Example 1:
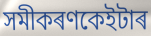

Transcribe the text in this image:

সমীকৰণকেইটাৰ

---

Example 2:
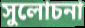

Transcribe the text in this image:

সুলোচনা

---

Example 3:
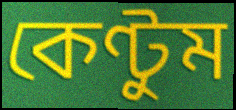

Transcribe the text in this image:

কেণ্টুম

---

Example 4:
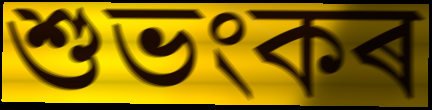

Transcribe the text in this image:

শুভংকৰ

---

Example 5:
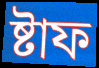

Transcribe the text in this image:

ষ্টাফ